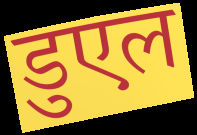
डुएल